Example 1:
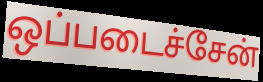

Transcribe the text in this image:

ஒப்படைச்சேன்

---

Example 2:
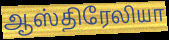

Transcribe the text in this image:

ஆஸ்திரேலியா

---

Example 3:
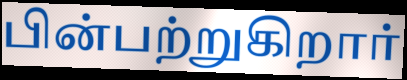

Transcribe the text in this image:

பின்பற்றுகிறார்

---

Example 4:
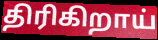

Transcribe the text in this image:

திரிகிறாய்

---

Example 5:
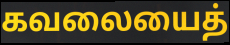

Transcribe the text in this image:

கவலையைத்